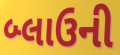
બ્લાઉની